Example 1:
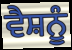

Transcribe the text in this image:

ਵੈਸ਼ਨੂੰ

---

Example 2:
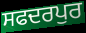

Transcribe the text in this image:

ਸਫਦਰਪੁਰ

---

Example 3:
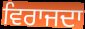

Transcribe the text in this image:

ਵਿਰਾਜਦਾ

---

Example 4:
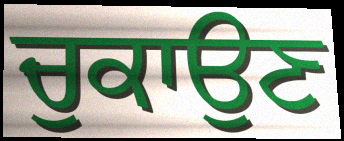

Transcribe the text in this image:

ਚੁਕਾਉਣ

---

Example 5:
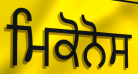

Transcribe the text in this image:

ਮਿਕੋਨੋਸ